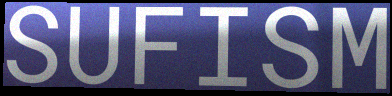
SUFISM